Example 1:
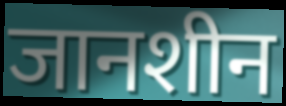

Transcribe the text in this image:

जानशीन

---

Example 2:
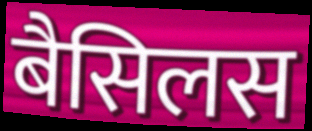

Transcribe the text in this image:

बैसिलस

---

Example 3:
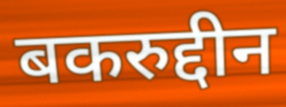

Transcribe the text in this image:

बकरुद्दीन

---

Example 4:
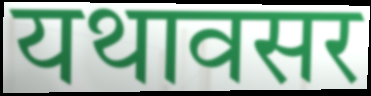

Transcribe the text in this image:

यथावसर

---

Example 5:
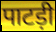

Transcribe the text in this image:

पाटड़ी